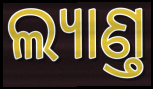
ଲ୍ୟାଣ୍ତ